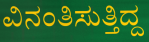
ವಿನಂತಿಸುತ್ತಿದ್ದ